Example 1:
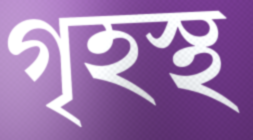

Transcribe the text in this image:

গৃহস্থ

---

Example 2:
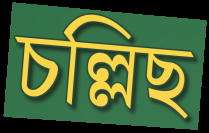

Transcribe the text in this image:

চল্লিছ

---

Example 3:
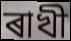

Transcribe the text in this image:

ৰাখী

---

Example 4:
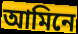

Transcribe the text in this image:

আমিনে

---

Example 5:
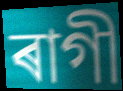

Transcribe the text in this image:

ৰাগী